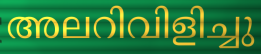
അലറിവിളിച്ചു